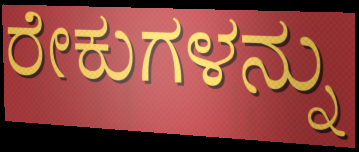
ರೇಕುಗಳನ್ನು